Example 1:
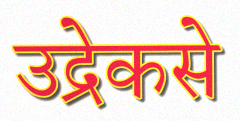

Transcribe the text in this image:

उद्रेकसे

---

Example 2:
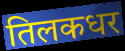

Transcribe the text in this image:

तिलकधर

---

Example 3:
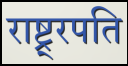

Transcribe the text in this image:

राष्ट्र्रपति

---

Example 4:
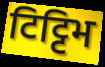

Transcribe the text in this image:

टिट्टिभ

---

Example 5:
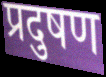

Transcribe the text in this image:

प्रदुषण